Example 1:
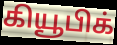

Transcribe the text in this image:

கியூபிக்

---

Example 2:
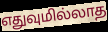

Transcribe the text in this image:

எதுவுமில்லாத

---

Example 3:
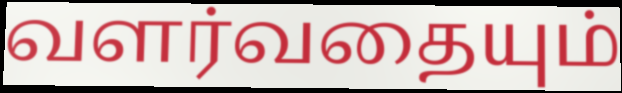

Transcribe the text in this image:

வளர்வதையும்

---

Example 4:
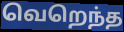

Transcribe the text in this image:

வெறெந்த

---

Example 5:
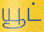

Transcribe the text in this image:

யூட்